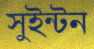
সুইন্টন